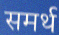
समर्थ